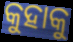
କୁହାକୁ